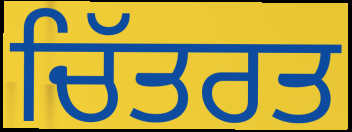
ਚਿੱਤਰਤ